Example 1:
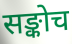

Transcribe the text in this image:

सङ्कोच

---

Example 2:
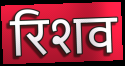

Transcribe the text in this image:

रिशव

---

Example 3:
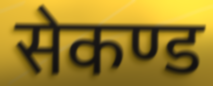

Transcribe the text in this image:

सेकण्ड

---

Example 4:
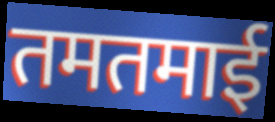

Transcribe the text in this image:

तमतमाई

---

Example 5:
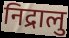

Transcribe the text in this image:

निद्रालु